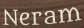
Neram